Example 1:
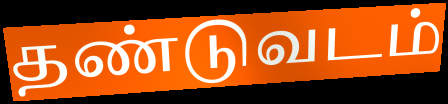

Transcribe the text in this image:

தண்டுவடம்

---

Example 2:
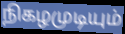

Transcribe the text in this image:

நிகழமுடியும்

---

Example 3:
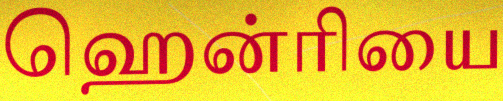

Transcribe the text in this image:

ஹென்ரியை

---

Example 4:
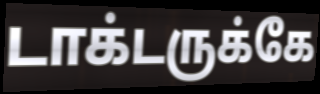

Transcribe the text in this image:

டாக்டருக்கே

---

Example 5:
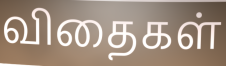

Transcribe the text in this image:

விதைகள்